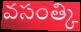
వసంత్కి